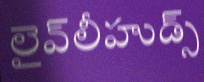
లైవ్‌లీహుడ్స్